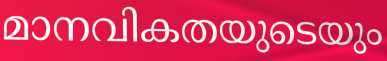
മാനവികതയുടെയും